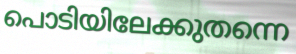
പൊടിയിലേക്കുതന്നെ